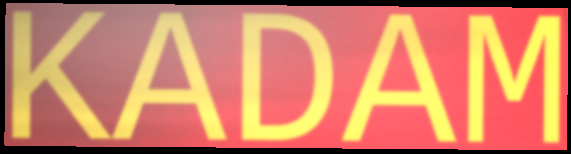
KADAM